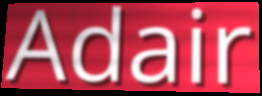
Adair